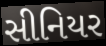
સીનિયર